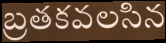
బ్రతకవలసిన